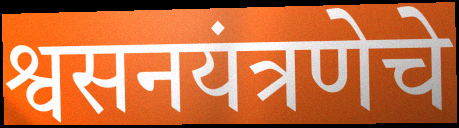
श्वसनयंत्रणेचे